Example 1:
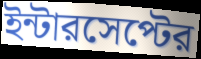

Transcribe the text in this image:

ইন্টারসেপ্টের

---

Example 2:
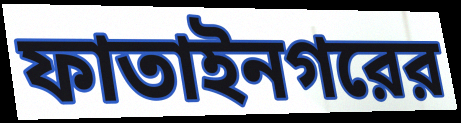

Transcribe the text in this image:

ফাতাইনগরের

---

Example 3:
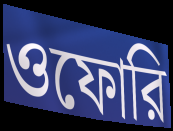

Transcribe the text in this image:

ওফোরি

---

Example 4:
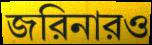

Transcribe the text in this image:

জরিনারও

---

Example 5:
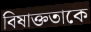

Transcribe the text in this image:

বিষাক্ততাকে